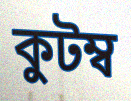
কুটম্ব